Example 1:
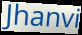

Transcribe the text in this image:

Jhanvi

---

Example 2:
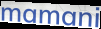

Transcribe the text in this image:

mamani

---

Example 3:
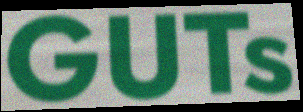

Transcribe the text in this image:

GUTs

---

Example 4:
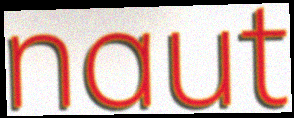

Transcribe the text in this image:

naut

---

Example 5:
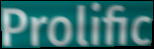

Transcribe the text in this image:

Prolific